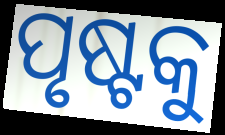
ପୃଷ୍ଟକୁ